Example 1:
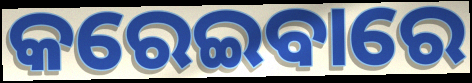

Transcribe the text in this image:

କରେଇବାରେ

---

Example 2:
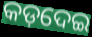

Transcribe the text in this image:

କଡ଼ଦେଇ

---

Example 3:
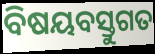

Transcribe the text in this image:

ବିଷୟବସ୍ତୁଗତ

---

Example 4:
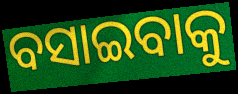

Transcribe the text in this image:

ବସାଇବାକୁ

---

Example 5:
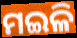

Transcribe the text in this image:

ମଇଳି